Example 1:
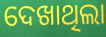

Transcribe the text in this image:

ଦେଖାଥିଲା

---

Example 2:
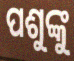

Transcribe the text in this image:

ପଶୁଙ୍କୁ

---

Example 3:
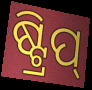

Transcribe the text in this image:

ଷ୍ଟ୍ରିପ୍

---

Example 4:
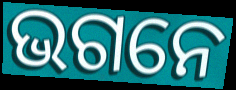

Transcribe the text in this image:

ଭଗନେ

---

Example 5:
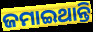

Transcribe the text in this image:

ଜମାଇଥାନ୍ତି